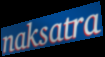
naksatra